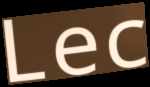
Lec